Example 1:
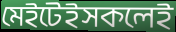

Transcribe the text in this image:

মেইটেইসকলেই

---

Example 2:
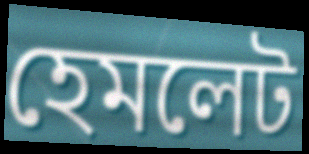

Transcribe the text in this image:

হেমলেট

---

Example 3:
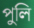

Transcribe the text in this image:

পুলি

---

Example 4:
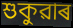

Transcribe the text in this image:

শুকুৱাৰ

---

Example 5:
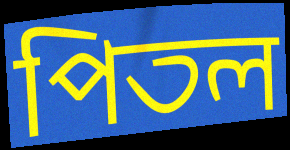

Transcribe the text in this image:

পিতল